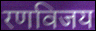
रणविजय